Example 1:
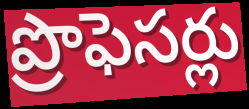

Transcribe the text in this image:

ప్రొఫెసర్లు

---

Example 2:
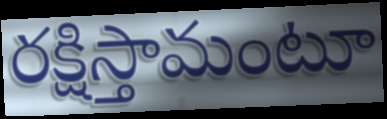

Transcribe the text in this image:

రక్షిస్తామంటూ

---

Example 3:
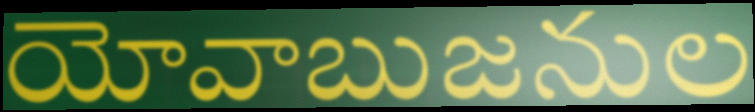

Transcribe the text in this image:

యోవాబుజనుల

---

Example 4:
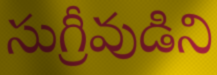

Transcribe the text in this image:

సుగ్రీవుడిని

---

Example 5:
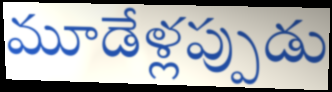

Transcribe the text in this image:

మూడేళ్లప్పుడు